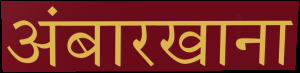
अंबारखाना